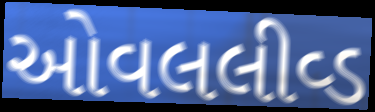
ઓવલલીવ્ડ